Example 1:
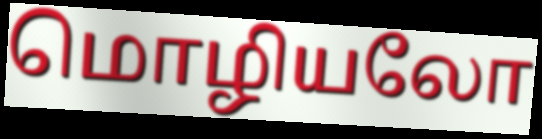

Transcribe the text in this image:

மொழியலோ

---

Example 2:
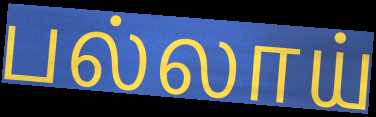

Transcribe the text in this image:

பல்லாய்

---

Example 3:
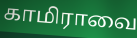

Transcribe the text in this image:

காமிராவை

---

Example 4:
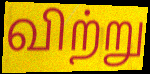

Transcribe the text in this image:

விற்று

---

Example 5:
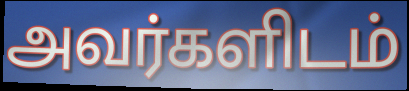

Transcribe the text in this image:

அவர்களிடம்